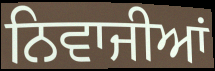
ਨਿਵਾਜੀਆਂ